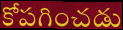
కోపగించడు